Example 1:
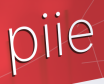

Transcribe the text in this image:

piie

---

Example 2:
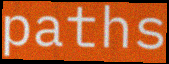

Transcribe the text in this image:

paths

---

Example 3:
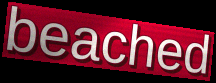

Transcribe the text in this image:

beached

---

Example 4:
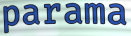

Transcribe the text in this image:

parama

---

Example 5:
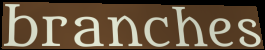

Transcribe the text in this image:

branches